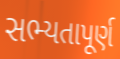
સભ્યતાપૂર્ણ